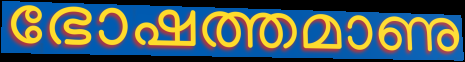
ഭോഷത്തമാണു